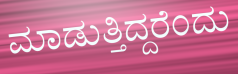
ಮಾಡುತ್ತಿದ್ದರೆಂದು